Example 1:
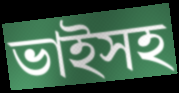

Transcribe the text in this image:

ভাইসহ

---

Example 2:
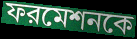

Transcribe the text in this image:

ফরমেশনকে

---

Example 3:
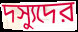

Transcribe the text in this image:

দস্যুদের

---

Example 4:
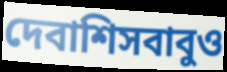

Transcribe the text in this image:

দেবাশিসবাবুও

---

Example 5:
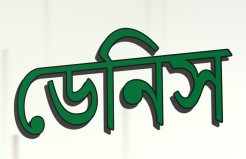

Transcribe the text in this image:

ডেনিস